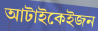
আটাইকেইজন